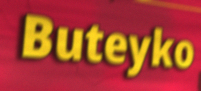
Buteyko